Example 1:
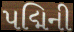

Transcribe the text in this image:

પદ્મિની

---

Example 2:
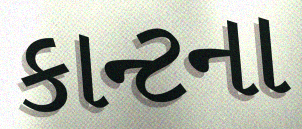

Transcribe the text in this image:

કાન્ટના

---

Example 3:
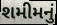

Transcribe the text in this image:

શમીમનું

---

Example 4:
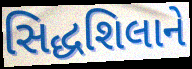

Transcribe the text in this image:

સિદ્ધશિલાને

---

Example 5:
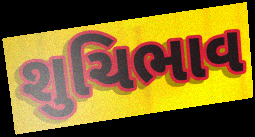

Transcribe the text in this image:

શુચિભાવ